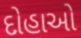
દોહાઓ